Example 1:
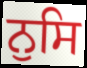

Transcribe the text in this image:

ਨੁਸਿ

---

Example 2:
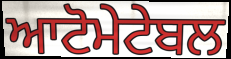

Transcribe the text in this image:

ਆਟੋਮੇਟੇਬਲ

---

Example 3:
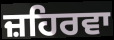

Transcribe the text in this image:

ਜ਼ਹਿਰਵਾ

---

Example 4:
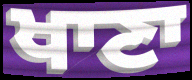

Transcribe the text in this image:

ਖਾਣਾ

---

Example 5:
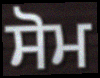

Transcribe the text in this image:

ਸੋਮ